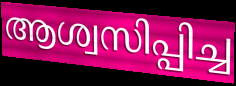
ആശ്വസിപ്പിച്ച